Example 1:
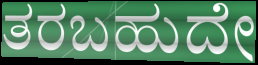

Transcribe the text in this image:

ತರಬಹುದೇ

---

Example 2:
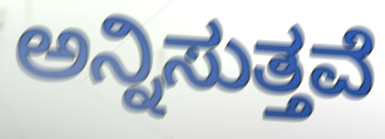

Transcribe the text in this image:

ಅನ್ನಿಸುತ್ತವೆ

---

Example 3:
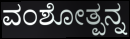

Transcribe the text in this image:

ವಂಶೋತ್ಪನ್ನ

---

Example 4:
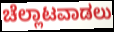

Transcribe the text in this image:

ಚೆಲ್ಲಾಟವಾಡಲು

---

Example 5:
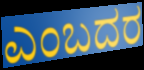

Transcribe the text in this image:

ಎಂಬದರ